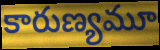
కారుణ్యమూ